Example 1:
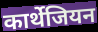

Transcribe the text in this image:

कार्थेजियन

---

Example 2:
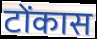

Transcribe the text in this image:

टोंकास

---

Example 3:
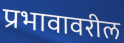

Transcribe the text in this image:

प्रभावावरील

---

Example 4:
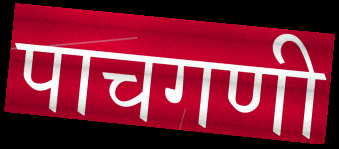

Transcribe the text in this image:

पाचगणी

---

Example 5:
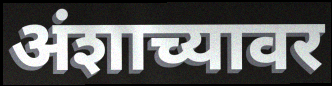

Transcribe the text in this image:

अंशाच्यावर